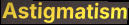
Astigmatism